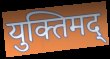
युक्तिमद्